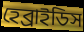
হেব্রাইডিস